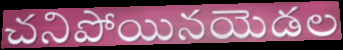
చనిపోయినయెడల